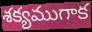
శక్యముగాక